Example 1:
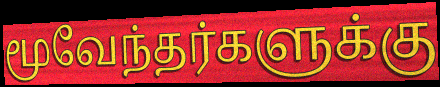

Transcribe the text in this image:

மூவேந்தர்களுக்கு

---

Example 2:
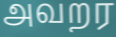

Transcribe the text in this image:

அவறர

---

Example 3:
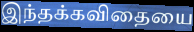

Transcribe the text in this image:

இந்தக்கவிதையை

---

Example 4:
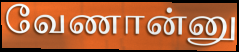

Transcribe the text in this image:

வேணான்னு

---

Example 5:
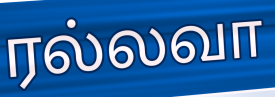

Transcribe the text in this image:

ரல்லவா